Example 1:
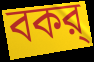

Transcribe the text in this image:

বকর্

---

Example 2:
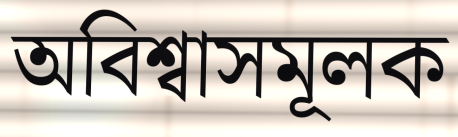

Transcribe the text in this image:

অবিশ্বাসমূলক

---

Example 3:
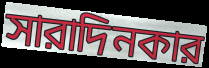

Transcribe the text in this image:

সারাদিনকার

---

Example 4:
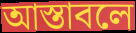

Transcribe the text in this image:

আস্তাবলে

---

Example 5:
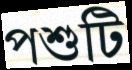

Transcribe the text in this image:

পশুটি